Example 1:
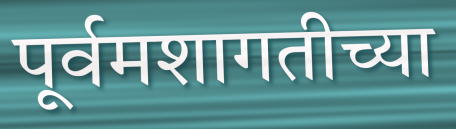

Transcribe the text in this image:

पूर्वमशागतीच्या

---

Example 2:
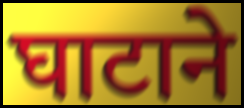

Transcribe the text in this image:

घाटाने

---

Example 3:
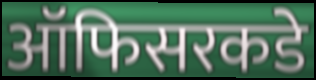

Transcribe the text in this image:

ऑफिसरकडे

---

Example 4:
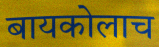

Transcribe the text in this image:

बायकोलाच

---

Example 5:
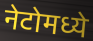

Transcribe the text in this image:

नेटोमध्ये